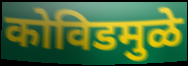
कोविडमुळे